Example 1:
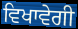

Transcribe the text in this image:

ਵਿਖਾਵੇਗੀ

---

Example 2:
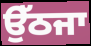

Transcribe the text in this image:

ਉੱਠਜਾ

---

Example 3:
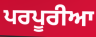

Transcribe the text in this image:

ਪਰਪੂਰੀਆ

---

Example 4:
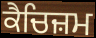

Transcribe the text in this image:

ਕੈਚਿਜ਼ਮ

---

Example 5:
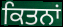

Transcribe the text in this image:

ਕਿਤਨਾਂ